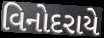
વિનોદરાયે